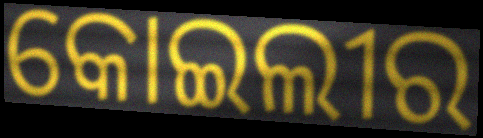
କୋଇଲୀର